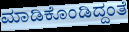
ಮಾಡಿಕೊಂಡಿದ್ದಂತೆ